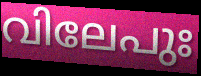
വിലേപുഃ